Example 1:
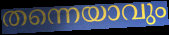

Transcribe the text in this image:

തന്നെയാവും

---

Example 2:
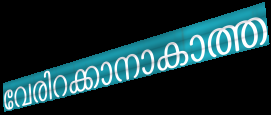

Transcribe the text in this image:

വേരിറക്കാനാകാത്ത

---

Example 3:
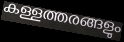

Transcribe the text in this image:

കള്ളത്തരങ്ങളും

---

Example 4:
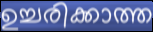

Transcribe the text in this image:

ഉച്ചരിക്കാത്ത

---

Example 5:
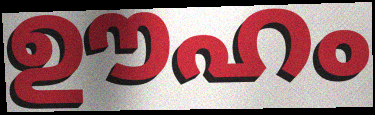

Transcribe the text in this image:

ഊഹം